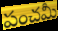
పంచమీ